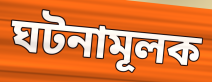
ঘটনামূলক